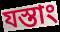
যস্তাং